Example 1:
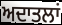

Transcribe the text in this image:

ਅਦਾਤਲਾਂ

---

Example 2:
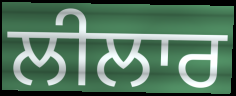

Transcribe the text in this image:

ਲੀਲਾਰ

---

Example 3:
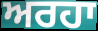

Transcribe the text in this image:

ਅਰਹਾ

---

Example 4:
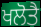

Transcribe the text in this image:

ਖਲੋਤੈ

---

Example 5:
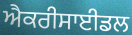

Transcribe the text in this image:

ਐਕਰੀਸਾਈਡਲ